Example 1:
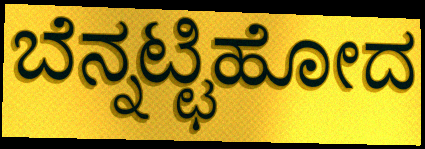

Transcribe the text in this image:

ಬೆನ್ನಟ್ಟಿಹೋದ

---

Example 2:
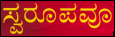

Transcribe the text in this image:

ಸ್ವರೂಪವೂ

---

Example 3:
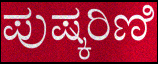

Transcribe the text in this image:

ಪುಷ್ಕರಿಣಿ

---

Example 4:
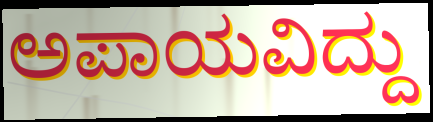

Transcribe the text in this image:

ಅಪಾಯವಿದ್ದು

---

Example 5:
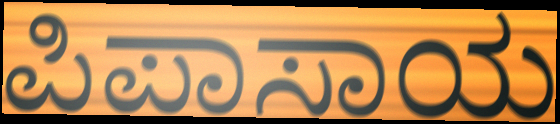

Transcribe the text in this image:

ಪಿಪಾಸಾಯ